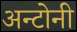
अन्टोनी